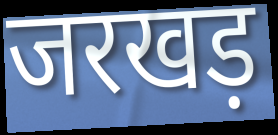
जरखड़